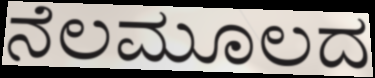
ನೆಲಮೂಲದ